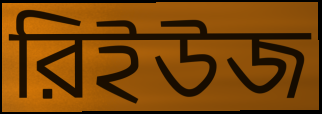
রিইউজ